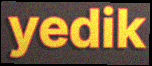
yedik